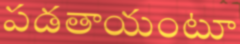
పడతాయంటూ